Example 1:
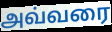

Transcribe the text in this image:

அவ்வரை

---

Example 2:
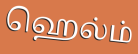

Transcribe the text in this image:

ஹெல்ம்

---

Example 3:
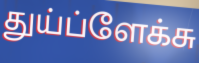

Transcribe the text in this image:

துய்ப்ளேக்சு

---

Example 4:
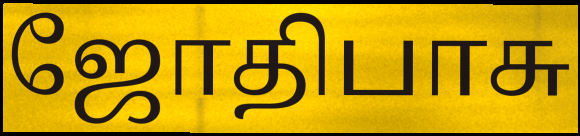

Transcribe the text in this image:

ஜோதிபாசு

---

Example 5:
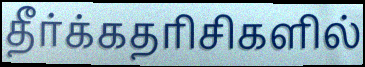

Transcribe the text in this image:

தீர்க்கதரிசிகளில்